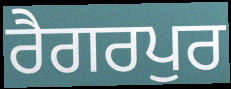
ਰੈਗਰਪੁਰ